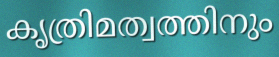
കൃത്രിമത്വത്തിനും